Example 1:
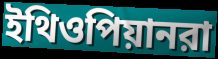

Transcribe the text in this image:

ইথিওপিয়ানরা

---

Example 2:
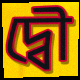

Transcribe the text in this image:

দ্বৌ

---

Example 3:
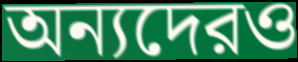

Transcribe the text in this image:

অন্যদেরও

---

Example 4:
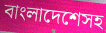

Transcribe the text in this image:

বাংলাদেশেসহ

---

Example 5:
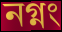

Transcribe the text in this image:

নগ্নং